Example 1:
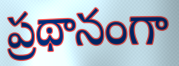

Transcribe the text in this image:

ప్రథానంగా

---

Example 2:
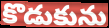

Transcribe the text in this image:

కొడుకును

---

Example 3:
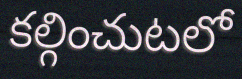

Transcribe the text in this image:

కల్గించుటలో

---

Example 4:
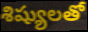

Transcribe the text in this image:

శిష్యులతో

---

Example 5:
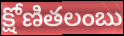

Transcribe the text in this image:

క్షోణితలంబు